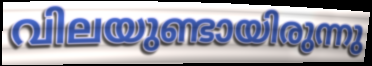
വിലയുണ്ടായിരുന്നു